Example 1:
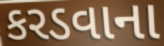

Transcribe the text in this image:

કરડવાના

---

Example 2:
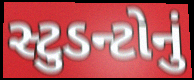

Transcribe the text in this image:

સ્ટુડન્ટોનું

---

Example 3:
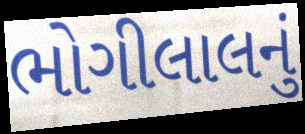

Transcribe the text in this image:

ભોગીલાલનું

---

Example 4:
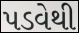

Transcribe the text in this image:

પડવેથી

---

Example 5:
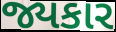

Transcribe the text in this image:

જ્યકાર